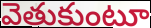
వెతుకుంటూ